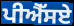
ਪੀਐੱਸਏ